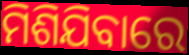
ମିଶିଯିବାରେ